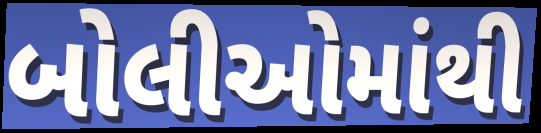
બોલીઓમાંથી